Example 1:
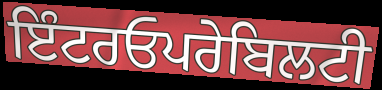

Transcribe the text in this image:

ਇੰਟਰਓਪਰੇਬਿਲਟੀ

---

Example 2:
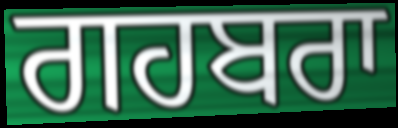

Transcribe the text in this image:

ਗਹਬਰਾ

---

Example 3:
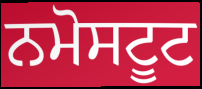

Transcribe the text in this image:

ਨਮੋਸਟੂਟ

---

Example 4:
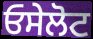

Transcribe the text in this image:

ਓਸੇਲੋਟ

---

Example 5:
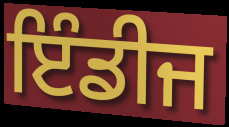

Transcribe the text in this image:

ਇੰਡੀਜ